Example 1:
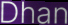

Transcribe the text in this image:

Dhan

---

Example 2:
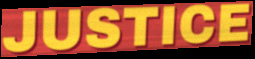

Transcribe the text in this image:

JUSTICE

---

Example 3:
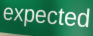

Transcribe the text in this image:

expected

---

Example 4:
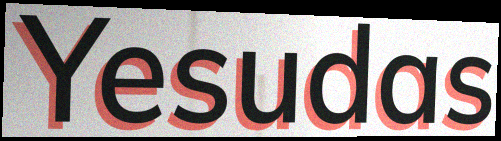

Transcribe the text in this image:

Yesudas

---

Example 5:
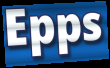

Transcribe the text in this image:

Epps